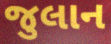
જુલાન